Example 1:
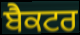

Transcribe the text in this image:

ਬੈਕਟਰ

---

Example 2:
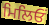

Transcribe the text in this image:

ਮਿਲਿਓਂ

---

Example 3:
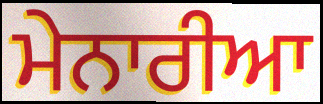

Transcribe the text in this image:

ਮੇਨਾਰੀਆ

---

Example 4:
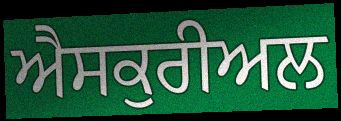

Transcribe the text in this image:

ਐਸਕੁਰੀਅਲ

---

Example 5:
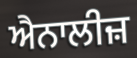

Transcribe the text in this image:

ਐਨਾਲੀਜ਼